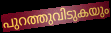
പുറത്തുവിടുകയും